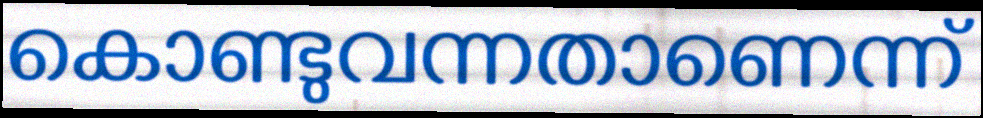
കൊണ്ടുവന്നതാണെന്ന്